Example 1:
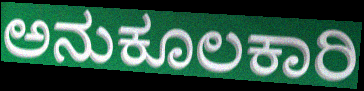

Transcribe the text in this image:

ಅನುಕೂಲಕಾರಿ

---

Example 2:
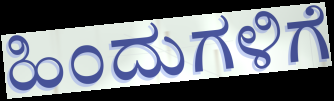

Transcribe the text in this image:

ಹಿಂದುಗಳಿಗೆ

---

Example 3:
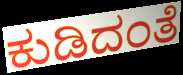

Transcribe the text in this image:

ಕುಡಿದಂತೆ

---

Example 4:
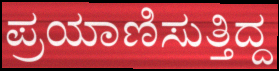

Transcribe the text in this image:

ಪ್ರಯಾಣಿಸುತ್ತಿದ್ದ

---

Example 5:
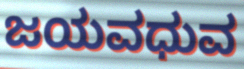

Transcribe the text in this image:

ಜಯವಧುವ